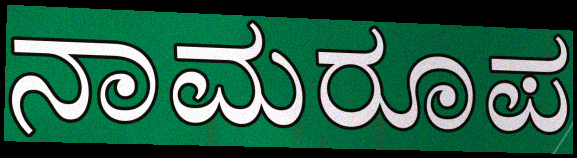
ನಾಮರೂಪ